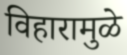
विहारामुळे